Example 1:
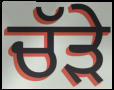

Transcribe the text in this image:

ਚੱੜੇ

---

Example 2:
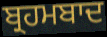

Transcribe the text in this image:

ਬ੍ਰਹਮਬਾਦ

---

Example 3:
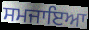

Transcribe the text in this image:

ਸਮਜਾਇਆ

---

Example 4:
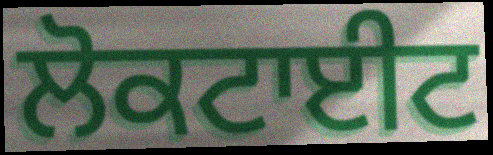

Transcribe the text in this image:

ਲੋਕਟਾਈਟ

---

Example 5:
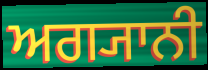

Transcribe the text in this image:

ਅਗ੍ਯਾਨੀ